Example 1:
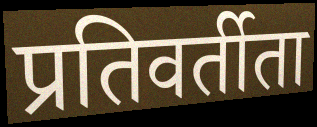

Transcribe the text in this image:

प्रतिवर्तीता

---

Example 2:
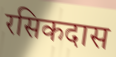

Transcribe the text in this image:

रसिकदास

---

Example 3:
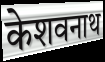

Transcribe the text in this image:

केशवनाथ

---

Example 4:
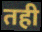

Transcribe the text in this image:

तही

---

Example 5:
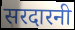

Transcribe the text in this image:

सरदारनी